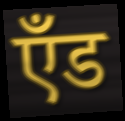
एँड